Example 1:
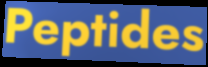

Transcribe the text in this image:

Peptides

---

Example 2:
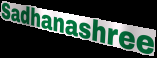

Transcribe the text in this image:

Sadhanashree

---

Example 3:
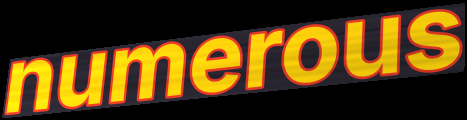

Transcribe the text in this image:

numerous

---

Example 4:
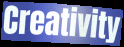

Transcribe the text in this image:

Creativity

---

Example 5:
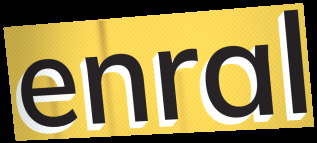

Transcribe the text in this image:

enral